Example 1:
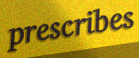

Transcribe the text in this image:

prescribes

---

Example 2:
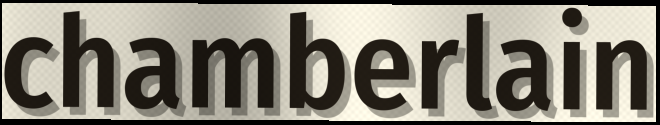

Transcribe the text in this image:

chamberlain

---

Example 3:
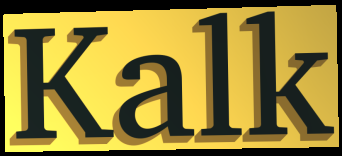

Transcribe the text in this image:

Kalk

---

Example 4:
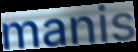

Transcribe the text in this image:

manis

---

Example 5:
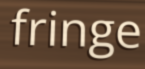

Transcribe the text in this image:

fringe